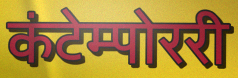
कंटेम्पोररी